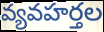
వ్యవహర్తల